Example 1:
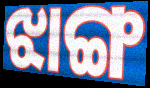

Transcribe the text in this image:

ଝାଙ୍ଗ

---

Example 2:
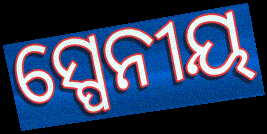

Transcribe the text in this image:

ସ୍ପେନୀୟ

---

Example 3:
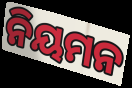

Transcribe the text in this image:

ନିୟମନ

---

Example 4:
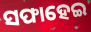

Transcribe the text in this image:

ସଫାହେଇ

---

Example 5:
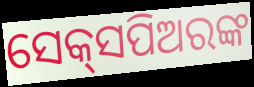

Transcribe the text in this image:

ସେକ୍‌ସପିଅରଙ୍କ